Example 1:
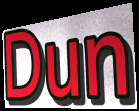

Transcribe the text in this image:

Dun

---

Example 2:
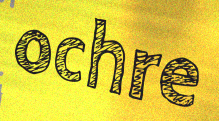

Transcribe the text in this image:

ochre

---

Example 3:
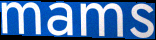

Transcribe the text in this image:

mams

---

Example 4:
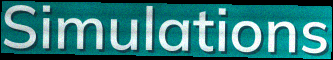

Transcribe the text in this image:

Simulations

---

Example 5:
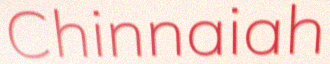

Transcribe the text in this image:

Chinnaiah